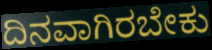
ದಿನವಾಗಿರಬೇಕು